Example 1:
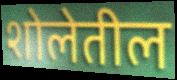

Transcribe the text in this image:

शोलेतील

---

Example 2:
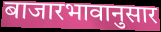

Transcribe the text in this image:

बाजारभावानुसार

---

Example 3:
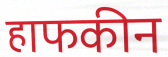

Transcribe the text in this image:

हाफकीन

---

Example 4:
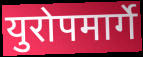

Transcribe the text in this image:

युरोपमार्गे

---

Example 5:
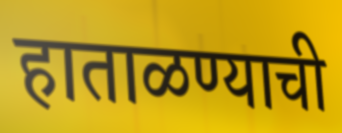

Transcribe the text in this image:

हाताळण्याची